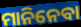
ମାନିନେବା